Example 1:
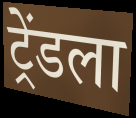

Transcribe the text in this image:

ट्रेंडला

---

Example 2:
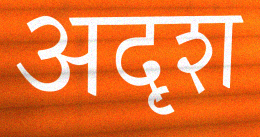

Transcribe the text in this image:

अदृश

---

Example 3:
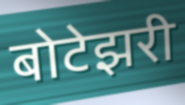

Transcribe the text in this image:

बोटेझरी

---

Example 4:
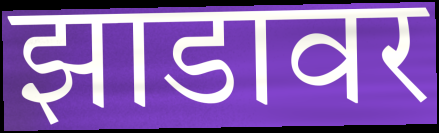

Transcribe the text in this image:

झाडावर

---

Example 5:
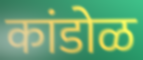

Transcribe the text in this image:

कांडोळ